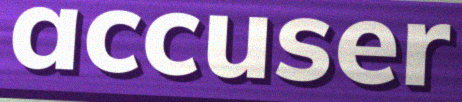
accuser